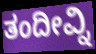
ತಂದೀವ್ನಿ